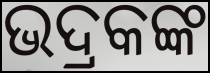
ଭଦ୍ରକଙ୍କ